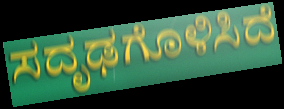
ಸದೃಢಗೊಳಿಸಿದೆ